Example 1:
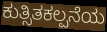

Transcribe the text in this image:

ಕುತ್ಸಿತಕಲ್ಪನೆಯ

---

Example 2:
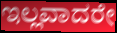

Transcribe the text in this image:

ಇಲ್ಲವಾದರೇ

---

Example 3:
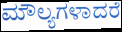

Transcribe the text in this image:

ಮೌಲ್ಯಗಳಾದರೆ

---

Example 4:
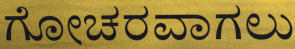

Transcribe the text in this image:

ಗೋಚರವಾಗಲು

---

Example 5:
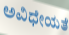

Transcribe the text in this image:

ಅವಿಧೇಯತೆ